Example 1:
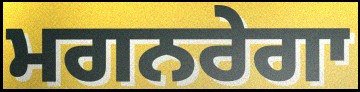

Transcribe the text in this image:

ਮਗਨਰੇਗਾ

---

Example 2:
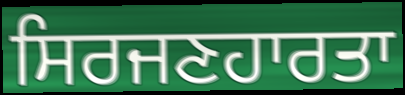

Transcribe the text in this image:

ਸਿਰਜਣਹਾਰਤਾ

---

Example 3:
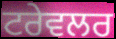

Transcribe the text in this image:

ਟਰੇਵਲਰ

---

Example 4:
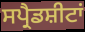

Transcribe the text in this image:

ਸਪ੍ਰੈਡਸ਼ੀਟਾਂ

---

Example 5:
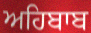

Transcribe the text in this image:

ਅਹਿਬਾਬ